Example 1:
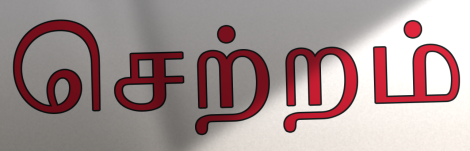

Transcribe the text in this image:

செற்றம்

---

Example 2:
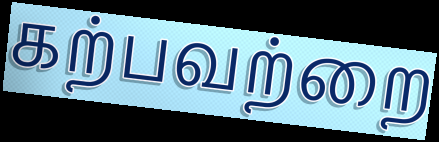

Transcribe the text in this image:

கற்பவற்றை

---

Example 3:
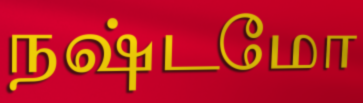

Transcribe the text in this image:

நஷ்டமோ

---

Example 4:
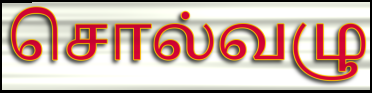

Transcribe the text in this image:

சொல்வழு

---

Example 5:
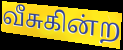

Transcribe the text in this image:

வீசுகின்ற